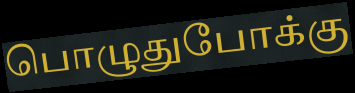
பொழுதுபோக்கு